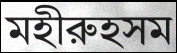
মহীরুহসম